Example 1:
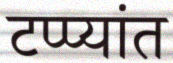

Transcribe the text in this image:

टप्प्यांत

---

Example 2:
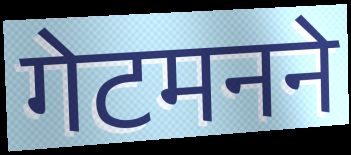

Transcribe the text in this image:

गेटमनने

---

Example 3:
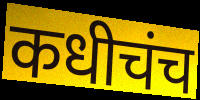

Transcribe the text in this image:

कधीचंच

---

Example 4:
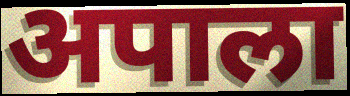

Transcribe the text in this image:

अपाला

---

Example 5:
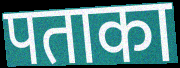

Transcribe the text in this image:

पताका